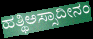
ಹತ್ಥಿಅಸ್ಸಾದೀನಂ